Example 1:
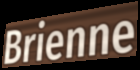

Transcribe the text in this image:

Brienne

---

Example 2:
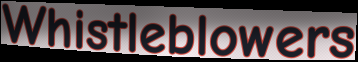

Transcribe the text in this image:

Whistleblowers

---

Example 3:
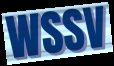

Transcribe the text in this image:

WSSV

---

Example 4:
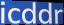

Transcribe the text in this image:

icddr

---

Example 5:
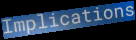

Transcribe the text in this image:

Implications